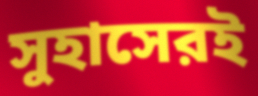
সুহাসেরই